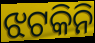
ଝଟକିନି